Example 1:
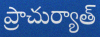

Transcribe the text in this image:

ప్రాచుర్యాత్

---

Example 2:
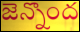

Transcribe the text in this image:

జెన్నొంద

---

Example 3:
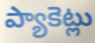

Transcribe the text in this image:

ప్యాకెట్లు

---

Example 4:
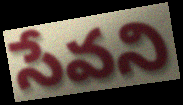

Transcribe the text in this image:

సేవని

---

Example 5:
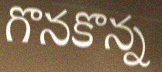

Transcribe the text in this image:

గొనకొన్న